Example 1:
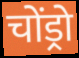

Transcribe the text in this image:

चोंड्रो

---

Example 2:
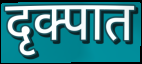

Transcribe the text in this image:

दृक्पात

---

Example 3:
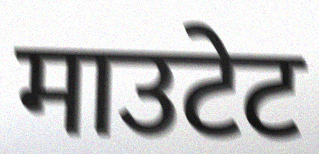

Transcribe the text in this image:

माउटेट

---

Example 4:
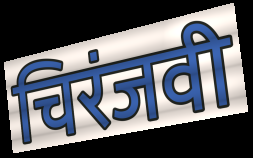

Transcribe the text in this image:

चिरंजवी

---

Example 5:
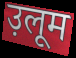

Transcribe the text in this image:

उ़लूम